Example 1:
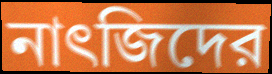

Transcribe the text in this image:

নাৎজিদের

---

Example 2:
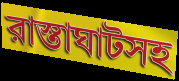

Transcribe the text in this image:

রাস্তাঘাটসহ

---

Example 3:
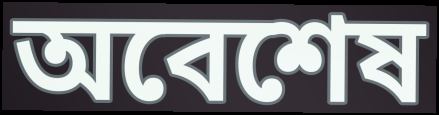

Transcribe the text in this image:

অবেশেষ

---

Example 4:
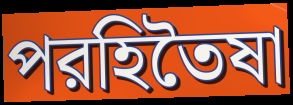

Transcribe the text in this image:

পরহিতৈষা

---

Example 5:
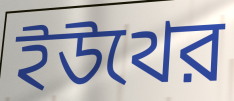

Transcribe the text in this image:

ইউথের